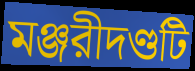
মঞ্জরীদণ্ডটি